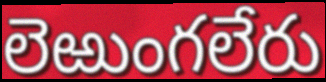
లెఱుంగలేరు